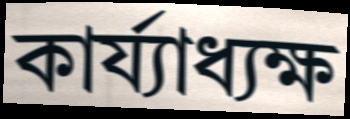
কার্য্যাধ্যক্ষ